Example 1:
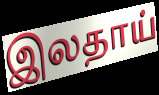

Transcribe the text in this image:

இலதாய்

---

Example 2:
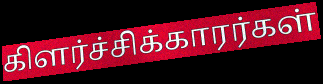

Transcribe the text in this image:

கிளர்ச்சிக்காரர்கள்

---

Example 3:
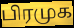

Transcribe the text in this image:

பிரமுக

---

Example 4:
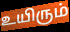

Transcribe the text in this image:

உயிரும்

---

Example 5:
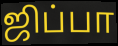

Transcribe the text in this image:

ஜிப்பா